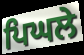
ਪਿਘਲੇ